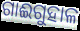
ଗାଈଗୁହାଳ